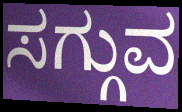
ಸಗ್ಗುವ